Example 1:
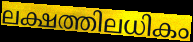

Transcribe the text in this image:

ലക്ഷത്തിലധികം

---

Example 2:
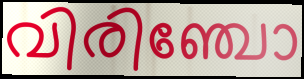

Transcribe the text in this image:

വിരിഞ്ചോ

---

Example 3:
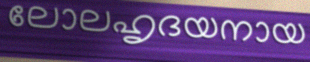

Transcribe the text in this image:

ലോലഹൃദയനായ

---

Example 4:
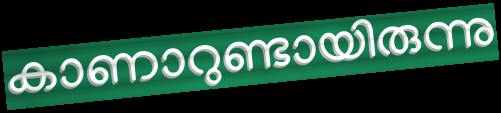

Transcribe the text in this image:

കാണാറുണ്ടായിരുന്നു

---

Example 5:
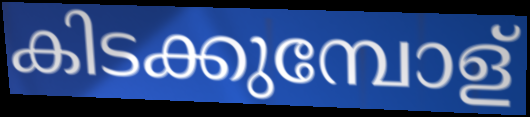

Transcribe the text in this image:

കിടക്കുമ്പോള്